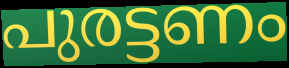
പുരട്ടണം